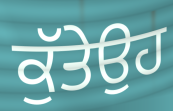
ਕੁੱਤੇਉਹ